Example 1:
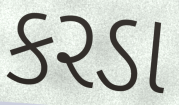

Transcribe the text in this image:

કરડા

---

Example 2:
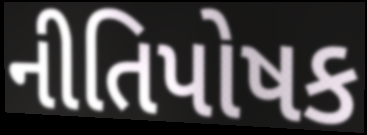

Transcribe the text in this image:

નીતિપોષક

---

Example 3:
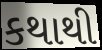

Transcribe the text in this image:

કથાથી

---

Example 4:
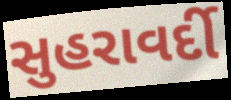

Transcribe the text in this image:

સુહરાવર્દી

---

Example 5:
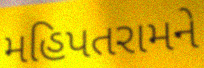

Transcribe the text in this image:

મહિપતરામને